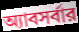
অ্যাবসর্বার